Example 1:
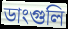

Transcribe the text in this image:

ডাংগুলি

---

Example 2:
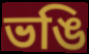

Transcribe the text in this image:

ভঙি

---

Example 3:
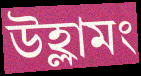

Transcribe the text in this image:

উহ্লামং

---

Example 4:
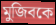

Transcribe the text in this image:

মুজিবকে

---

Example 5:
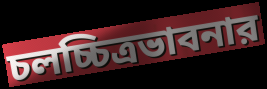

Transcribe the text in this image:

চলচ্চিত্রভাবনার